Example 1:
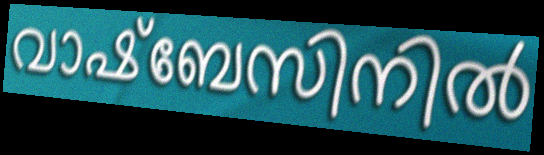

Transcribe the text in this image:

വാഷ്ബേസിനിൽ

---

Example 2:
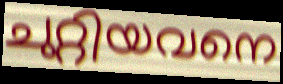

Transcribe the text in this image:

ചുറ്റിയവനെ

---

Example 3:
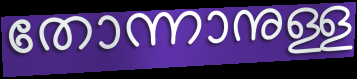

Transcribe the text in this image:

തോന്നാനുള്ള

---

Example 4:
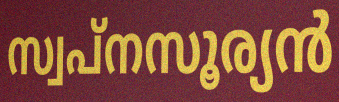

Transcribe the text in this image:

സ്വപ്നസൂര്യൻ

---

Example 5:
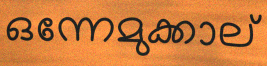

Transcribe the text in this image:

ഒന്നേമുക്കാല്